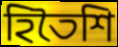
হিতৈশি